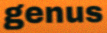
genus